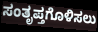
ಸಂತೃಪ್ತಗೊಳಿಸಲು